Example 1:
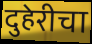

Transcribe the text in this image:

दुहेरीचा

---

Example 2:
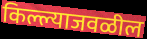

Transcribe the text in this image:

किल्ल्याजवळील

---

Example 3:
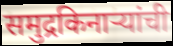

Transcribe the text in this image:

समुद्रकिनाऱ्यांची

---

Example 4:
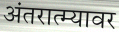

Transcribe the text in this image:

अंतरात्म्यावर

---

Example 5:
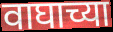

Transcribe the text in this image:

वाघाच्या